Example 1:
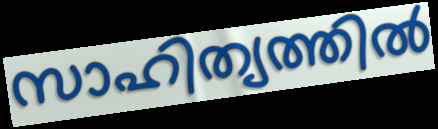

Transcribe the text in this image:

സാഹിത്യത്തിൽ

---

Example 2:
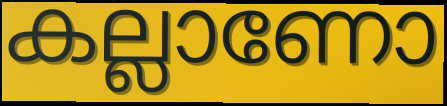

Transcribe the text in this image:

കല്ലാണോ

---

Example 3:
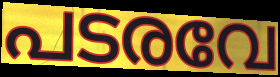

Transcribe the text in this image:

പടരവേ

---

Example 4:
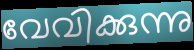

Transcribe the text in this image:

വേവിക്കുന്നു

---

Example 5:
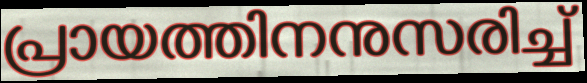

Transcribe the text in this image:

പ്രായത്തിനനുസരിച്ച്